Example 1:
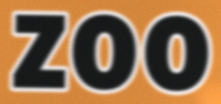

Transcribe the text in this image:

zoo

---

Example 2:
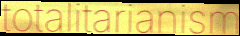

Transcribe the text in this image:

totalitarianism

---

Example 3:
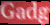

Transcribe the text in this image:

Gadg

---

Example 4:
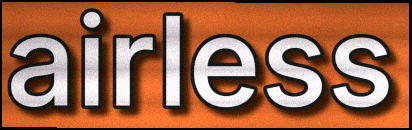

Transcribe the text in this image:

airless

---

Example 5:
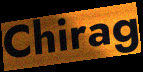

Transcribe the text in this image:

Chirag